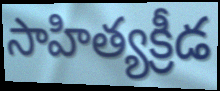
సాహిత్యక్రీడ